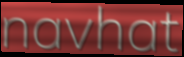
navhat